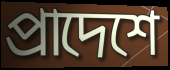
প্রাদেশে